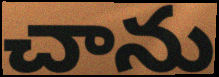
చాను